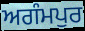
ਅਗੰਮਪੁਰ